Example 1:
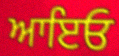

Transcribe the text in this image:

ਆਇਓ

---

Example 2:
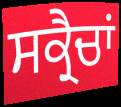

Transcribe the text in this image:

ਸਕ੍ਰੈਚਾਂ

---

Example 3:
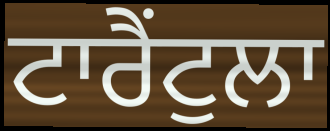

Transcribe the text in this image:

ਟਾਰੈਂਟੁਲਾ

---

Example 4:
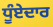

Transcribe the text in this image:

ਧੂੰਏਦਾਰ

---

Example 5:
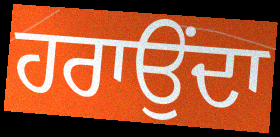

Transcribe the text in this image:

ਹਰਾਉਂਦਾ